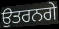
ਉਤਰਨਗੇ